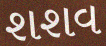
શશવ